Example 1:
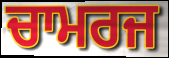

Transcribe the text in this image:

ਚਾਮਰਜ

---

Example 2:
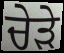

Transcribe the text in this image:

ਚੇੜੇ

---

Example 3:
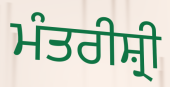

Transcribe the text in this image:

ਮੰਤਰੀਸ਼੍ਰੀ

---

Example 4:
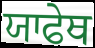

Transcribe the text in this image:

ਯਾਫੇਥ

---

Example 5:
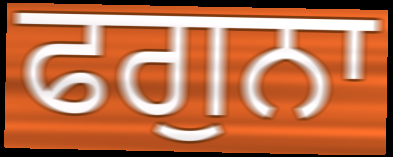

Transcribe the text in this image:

ਫਗੁਨਾ